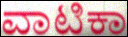
ವಾಟಿಕಾ